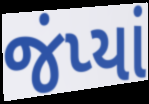
જંપ્યાં